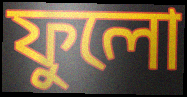
ফুলো